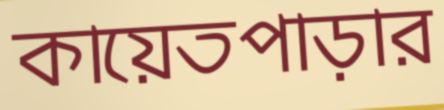
কায়েতপাড়ার